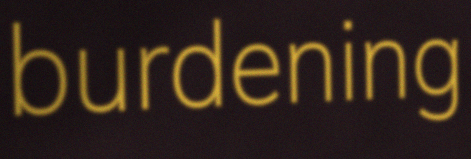
burdening